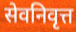
सेवनिवृत्त